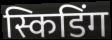
स्किडिंग